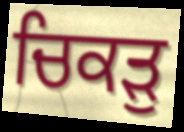
ਚਿਕੜੁ